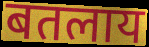
बतलाय